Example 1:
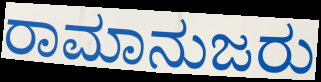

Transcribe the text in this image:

ರಾಮಾನುಜರು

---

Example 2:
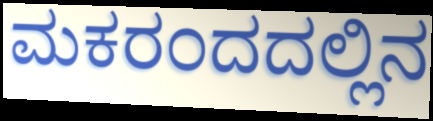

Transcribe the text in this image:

ಮಕರಂದದಲ್ಲಿನ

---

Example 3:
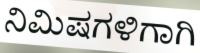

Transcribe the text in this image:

ನಿಮಿಷಗಳಿಗಾಗಿ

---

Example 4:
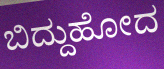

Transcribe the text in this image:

ಬಿದ್ದುಹೋದ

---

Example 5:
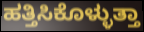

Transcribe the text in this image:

ಹತ್ತಿಸಿಕೊಳ್ಳುತ್ತಾ